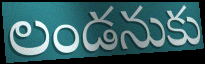
లండనుకు